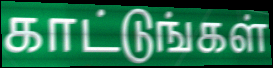
காட்டுங்கள்